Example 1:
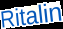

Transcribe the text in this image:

Ritalin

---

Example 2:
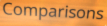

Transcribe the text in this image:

Comparisons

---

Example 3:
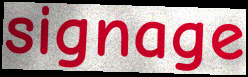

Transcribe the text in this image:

signage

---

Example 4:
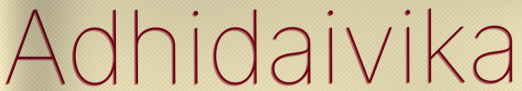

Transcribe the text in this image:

Adhidaivika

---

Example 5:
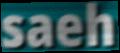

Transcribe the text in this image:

saeh